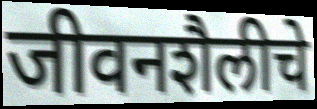
जीवनशैलीचे